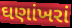
ઘણાંખરાં